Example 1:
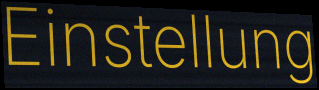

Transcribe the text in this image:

Einstellung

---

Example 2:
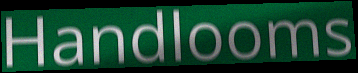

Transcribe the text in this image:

Handlooms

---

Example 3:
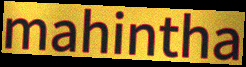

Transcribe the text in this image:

mahintha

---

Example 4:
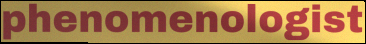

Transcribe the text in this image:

phenomenologist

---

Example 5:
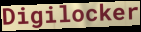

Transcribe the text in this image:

Digilocker